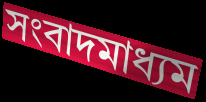
সংবাদমাধ্যম